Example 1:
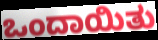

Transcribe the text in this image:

ಒಂದಾಯಿತು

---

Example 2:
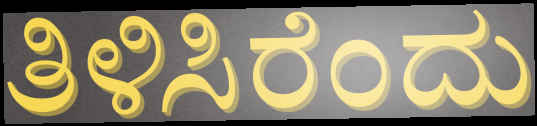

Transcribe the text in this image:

ತಿಳಿಸಿರೆಂದು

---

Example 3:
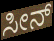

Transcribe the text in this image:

ಸೀನ್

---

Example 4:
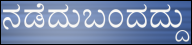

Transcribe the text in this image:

ನಡೆದುಬಂದದ್ದು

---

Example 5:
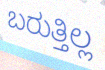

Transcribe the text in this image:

ಬರುತ್ತಿಲ್ಲ